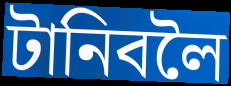
টানিবলৈ